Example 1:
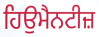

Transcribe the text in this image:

ਹਿਉਮੈਨਟੀਜ਼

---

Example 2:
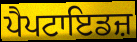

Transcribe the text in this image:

ਪੈਪਟਾਇਡਜ਼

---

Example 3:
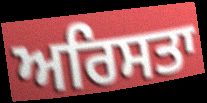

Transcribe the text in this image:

ਅਰਿਸਤਾ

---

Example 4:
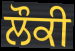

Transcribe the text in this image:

ਲੌਕੀ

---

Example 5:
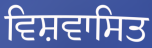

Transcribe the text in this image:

ਵਿਸ਼ਵਾਸਿਤ